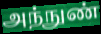
அந்நுண்